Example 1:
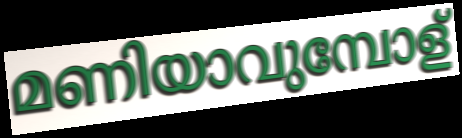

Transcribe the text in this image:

മണിയാവുമ്പോള്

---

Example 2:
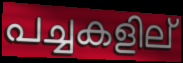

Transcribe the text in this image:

പച്ചകളില്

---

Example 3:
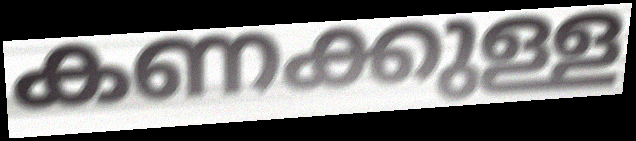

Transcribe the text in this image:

കണക്കുള്ള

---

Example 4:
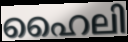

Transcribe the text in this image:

ഹൈലി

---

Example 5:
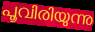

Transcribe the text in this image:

പൂവിരിയുന്നു